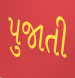
પુજાતી